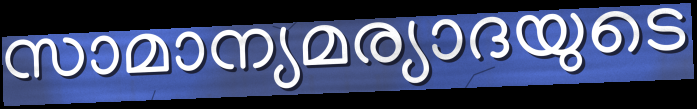
സാമാന്യമര്യാദയുടെ